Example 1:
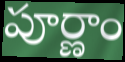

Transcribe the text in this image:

పూర్ణాం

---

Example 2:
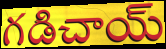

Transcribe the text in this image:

గడిచాయ్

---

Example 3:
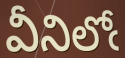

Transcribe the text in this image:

వీనిలోఁ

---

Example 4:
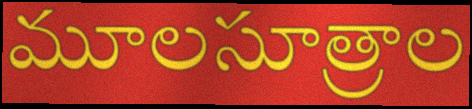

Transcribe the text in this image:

మూలసూత్రాల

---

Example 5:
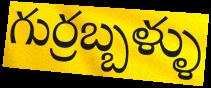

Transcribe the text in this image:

గుర్రబ్బళ్ళు